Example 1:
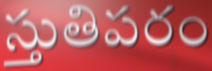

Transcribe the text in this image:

స్తుతిపరం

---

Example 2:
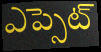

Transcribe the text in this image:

ఎప్సెట్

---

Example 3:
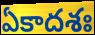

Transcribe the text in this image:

ఏకాదశః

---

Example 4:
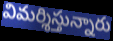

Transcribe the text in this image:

విమర్శిస్తున్నారు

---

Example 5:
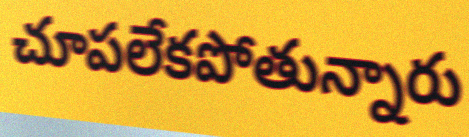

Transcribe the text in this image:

చూపలేకపోతున్నారు